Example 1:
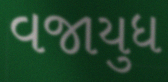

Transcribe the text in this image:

વજાયુધ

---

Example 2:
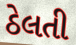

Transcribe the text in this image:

ઠેલતી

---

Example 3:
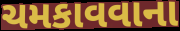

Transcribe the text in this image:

ચમકાવવાના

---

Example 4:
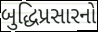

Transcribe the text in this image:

બુદ્ધિપ્રસારનો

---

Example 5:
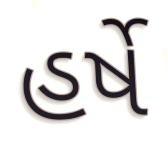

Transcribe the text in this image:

હર્ષે